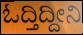
ಓದ್ತಿದ್ದೀನಿ